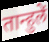
तान्हुलें